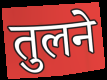
तुलने